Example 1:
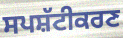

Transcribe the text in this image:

ਸਪਸ਼ੱਟੀਕਰਣ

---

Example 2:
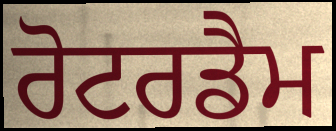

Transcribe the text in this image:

ਰੋਟਰਡੈਮ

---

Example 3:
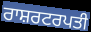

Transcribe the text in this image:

ਰਾਸ਼ਰਟਰਪਤੀ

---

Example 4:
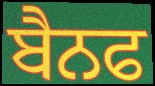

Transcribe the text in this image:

ਬੈਨਫ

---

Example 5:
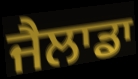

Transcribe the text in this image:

ਜੈਲਾਡਾ